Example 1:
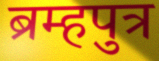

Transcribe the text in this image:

ब्रम्हपुत्र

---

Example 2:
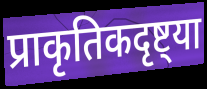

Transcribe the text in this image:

प्राकृतिकदृष्ट्या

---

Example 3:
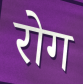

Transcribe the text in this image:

रोग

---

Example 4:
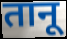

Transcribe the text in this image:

तानू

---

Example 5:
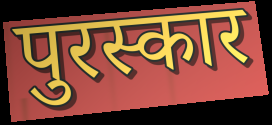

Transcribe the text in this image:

पुरस्कार